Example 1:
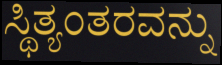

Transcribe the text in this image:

ಸ್ಥಿತ್ಯಂತರವನ್ನು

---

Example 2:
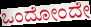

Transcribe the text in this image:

ಒಂದೋಂದೇ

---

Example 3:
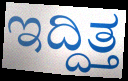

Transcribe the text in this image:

ಇದ್ದಿತ್ತ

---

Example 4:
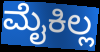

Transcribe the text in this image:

ಮೈಕಿಲ್ಲ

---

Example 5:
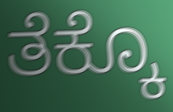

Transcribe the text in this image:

ತೆಕ್ಕೊ